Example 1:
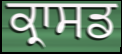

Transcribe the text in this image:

ਕ੍ਰਾਸਡ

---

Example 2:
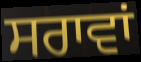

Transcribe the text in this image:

ਸਰਾਵਾਂ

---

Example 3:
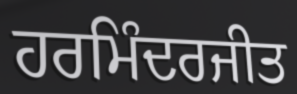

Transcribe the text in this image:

ਹਰਮਿੰਦਰਜੀਤ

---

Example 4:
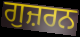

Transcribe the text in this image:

ਗੁਜ਼ਰਨ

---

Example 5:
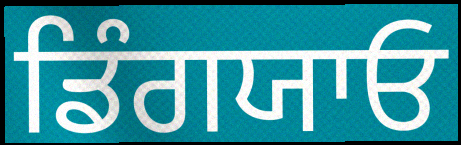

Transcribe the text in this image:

ਡਿੰਗਯਾਓ